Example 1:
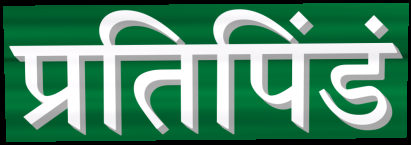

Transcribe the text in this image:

प्रतिपिंडं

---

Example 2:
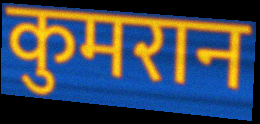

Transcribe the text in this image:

कुमरान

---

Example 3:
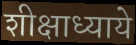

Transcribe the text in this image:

शीक्षाध्याये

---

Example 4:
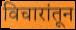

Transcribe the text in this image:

विचारांतून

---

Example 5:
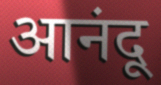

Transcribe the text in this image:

आनंदू